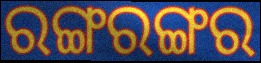
ରଙ୍ଗରଙ୍ଗର